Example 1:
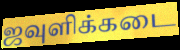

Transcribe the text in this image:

ஜவுளிக்கடை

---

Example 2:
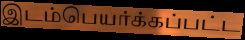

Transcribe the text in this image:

இடம்பெயர்க்கப்பட்ட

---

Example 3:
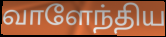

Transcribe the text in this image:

வாளேந்திய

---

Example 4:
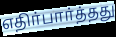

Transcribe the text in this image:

எதிர்பார்த்தது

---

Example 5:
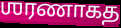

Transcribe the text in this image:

ஶரணாகத